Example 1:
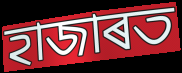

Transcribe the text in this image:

হাজাৰত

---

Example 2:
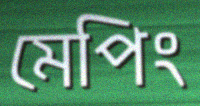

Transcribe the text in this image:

মেপিং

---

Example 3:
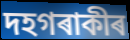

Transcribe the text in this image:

দহগৰাকীৰ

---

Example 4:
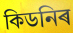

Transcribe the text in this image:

কিডনিৰ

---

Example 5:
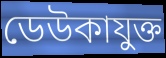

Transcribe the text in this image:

ডেউকাযুক্ত